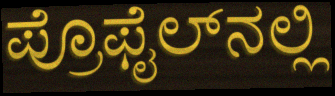
ಪ್ರೊಫೈಲ್‌ನಲ್ಲಿ